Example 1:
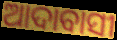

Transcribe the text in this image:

ଆଦାବାସୀ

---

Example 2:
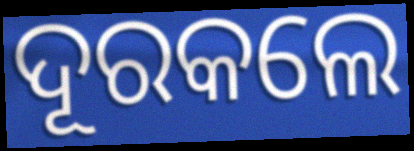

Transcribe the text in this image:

ଦୂରକଲେ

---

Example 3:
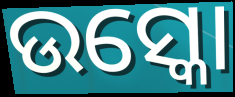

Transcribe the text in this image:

ଉସ୍କୋ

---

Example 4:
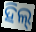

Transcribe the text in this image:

ହିଲ୍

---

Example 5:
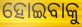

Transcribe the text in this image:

ହୋଇବାକୁ